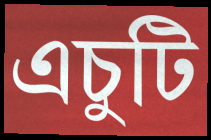
এচুটি